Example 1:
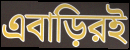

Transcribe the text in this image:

এবাড়িরই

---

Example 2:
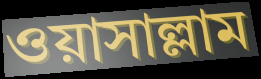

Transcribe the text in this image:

ওয়াসাল্লাম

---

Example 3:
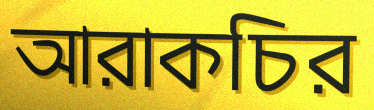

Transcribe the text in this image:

আরাকচির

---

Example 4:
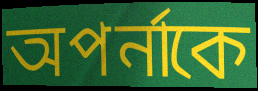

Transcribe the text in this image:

অপর্নাকে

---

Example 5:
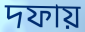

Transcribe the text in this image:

দফায়